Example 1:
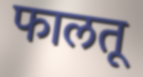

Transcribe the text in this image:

फालतू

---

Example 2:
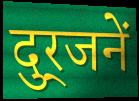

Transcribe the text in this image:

दुर्जनें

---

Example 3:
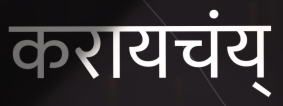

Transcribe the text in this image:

करायचंय्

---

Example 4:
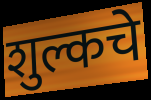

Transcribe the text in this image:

शुल्कचे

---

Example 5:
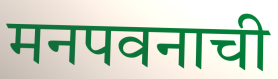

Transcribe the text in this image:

मनपवनाची